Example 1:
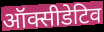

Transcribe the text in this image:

ऑक्सीडेटिव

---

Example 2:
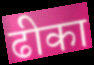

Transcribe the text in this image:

ढीका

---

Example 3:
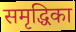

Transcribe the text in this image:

समृद्धिका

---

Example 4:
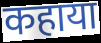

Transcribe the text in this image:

कहाया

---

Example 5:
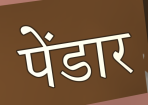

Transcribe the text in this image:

पेंडार